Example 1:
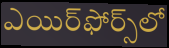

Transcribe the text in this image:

ఎయిర్‌ఫోర్స్‌లో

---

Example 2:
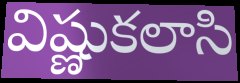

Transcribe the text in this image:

విష్ణుకలాసి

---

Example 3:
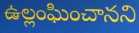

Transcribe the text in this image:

ఉల్లంఘించానని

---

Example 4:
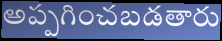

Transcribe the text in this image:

అప్పగించబడతారు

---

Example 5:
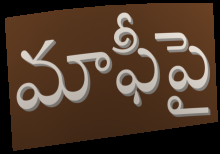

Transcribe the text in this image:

మాఫీపై